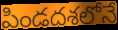
పిండదశలోనే